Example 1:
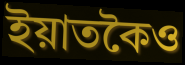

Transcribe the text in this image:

ইয়াতকৈও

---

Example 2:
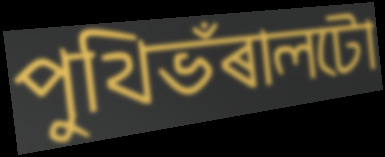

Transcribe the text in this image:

পুথিভঁৰালটো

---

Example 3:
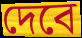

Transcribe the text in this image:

দেবে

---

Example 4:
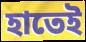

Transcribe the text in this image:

হাতেই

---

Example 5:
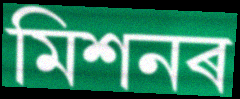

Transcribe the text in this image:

মিশনৰ